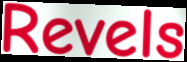
Revels